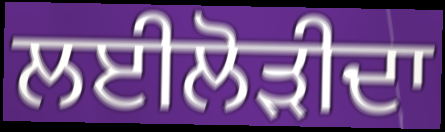
ਲਈਲੋੜੀਦਾ